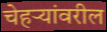
चेहऱ्यांवरील